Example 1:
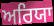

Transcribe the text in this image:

ਅਰਿਯਾ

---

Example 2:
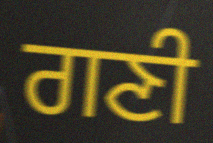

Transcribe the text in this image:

ਗਣੀ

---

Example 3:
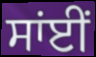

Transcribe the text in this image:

ਸਾਂਈਂ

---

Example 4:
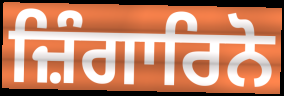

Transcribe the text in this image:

ਜ਼ਿੰਗਾਰਿਨੋ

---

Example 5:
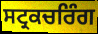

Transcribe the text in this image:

ਸਟ੍ਰਕਚਰਿੰਗ